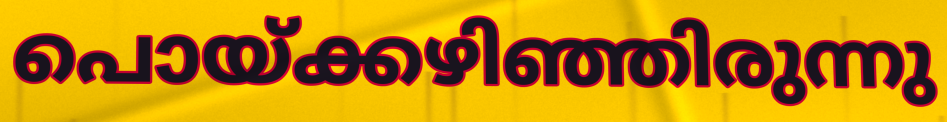
പൊയ്ക്കഴിഞ്ഞിരുന്നു